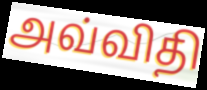
அவ்விதி